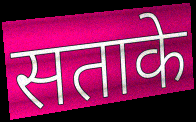
सताके